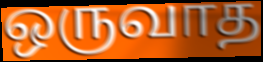
ஒருவாத